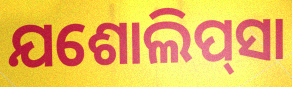
ଯଶୋଲିପ୍‌ସା